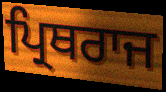
ਪ੍ਰਿਥਰਾਜ